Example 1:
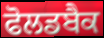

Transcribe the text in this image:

ਫੋਲਡਬੈਕ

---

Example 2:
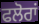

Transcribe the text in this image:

ਫਲੋਰਾਂ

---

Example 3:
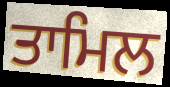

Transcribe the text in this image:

ਤਾਮਿਲ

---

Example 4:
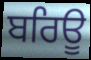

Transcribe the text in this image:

ਬਰਿਊ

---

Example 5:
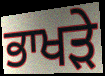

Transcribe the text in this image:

ਭਾਖੜੇ